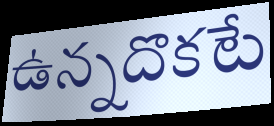
ఉన్నదొకటే